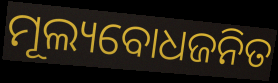
ମୂଲ୍ୟବୋଧଜନିତ